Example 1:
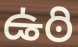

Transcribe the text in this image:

ఉఠి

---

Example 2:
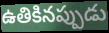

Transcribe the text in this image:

ఉతికినప్పుడు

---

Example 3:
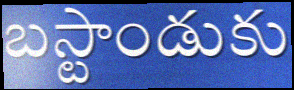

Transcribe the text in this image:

బస్టాండుకు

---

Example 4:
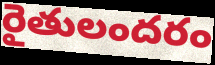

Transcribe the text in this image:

రైతులందరం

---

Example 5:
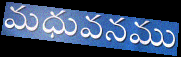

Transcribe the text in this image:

మధువనము